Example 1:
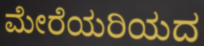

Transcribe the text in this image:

ಮೇರೆಯರಿಯದ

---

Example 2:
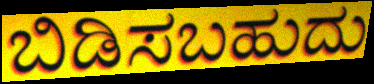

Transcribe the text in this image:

ಬಿಡಿಸಬಹುದು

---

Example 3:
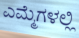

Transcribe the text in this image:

ಎಮ್ಮೆಗಳಲ್ಲಿ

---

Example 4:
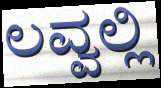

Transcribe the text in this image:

ಲವ್ವಲ್ಲಿ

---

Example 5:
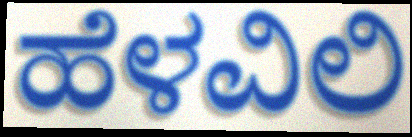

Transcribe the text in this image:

ಹೆಳವಿಲಿ